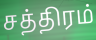
சத்திரம்